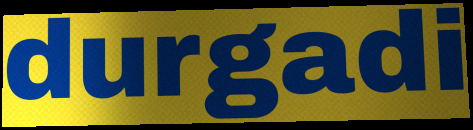
durgadi